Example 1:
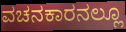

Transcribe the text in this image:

ವಚನಕಾರನಲ್ಲೂ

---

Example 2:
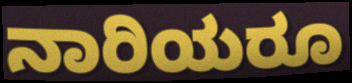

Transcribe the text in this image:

ನಾರಿಯರೂ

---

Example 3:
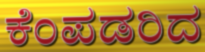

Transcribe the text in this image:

ಕೆಂಪಡರಿದ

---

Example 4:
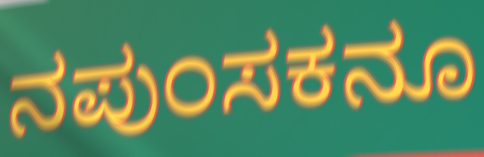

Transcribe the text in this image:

ನಪುಂಸಕನೂ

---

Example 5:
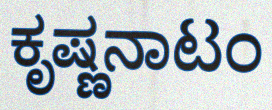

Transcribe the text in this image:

ಕೃಷ್ಣನಾಟಂ